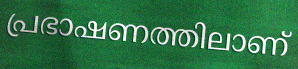
പ്രഭാഷണത്തിലാണ്